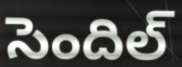
సెందిల్